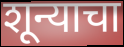
शून्याचा